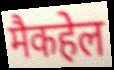
मैकहेल